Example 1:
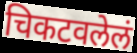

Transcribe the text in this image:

चिकटवलेलं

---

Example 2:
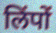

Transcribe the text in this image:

लिंपों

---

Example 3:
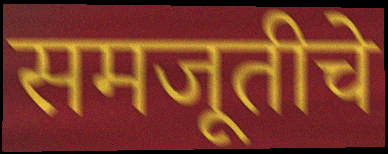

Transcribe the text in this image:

समजूतीचे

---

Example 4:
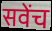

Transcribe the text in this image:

सवेंच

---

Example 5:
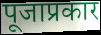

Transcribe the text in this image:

पूजाप्रकार